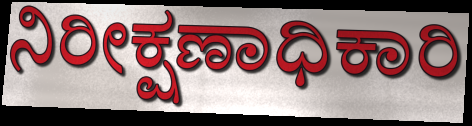
ನಿರೀಕ್ಷಣಾಧಿಕಾರಿ